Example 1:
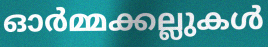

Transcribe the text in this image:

ഓർമ്മക്കല്ലുകൾ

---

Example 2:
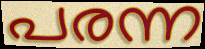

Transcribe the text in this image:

പരന്ന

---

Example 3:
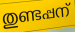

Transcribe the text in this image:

തുണ്ടപ്പന്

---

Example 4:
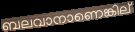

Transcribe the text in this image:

ബലവാനാണെങ്കില്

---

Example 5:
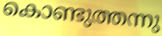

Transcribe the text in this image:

കൊണ്ടുത്തന്നു